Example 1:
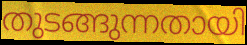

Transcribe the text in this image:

തുടങ്ങുന്നതായി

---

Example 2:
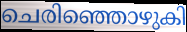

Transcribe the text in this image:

ചെരിഞ്ഞൊഴുകി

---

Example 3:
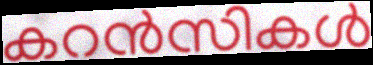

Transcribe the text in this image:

കറൻസികൾ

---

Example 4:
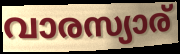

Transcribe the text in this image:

വാരസ്യാര്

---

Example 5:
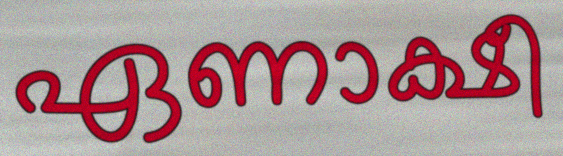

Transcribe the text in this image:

ഏണാക്ഷീ